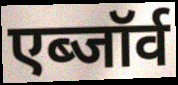
एब्जॉर्व